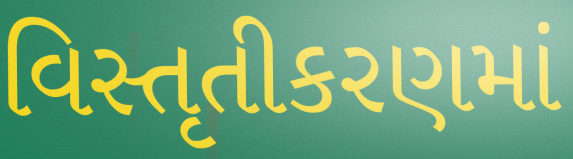
વિસ્તૃતીકરણમાં